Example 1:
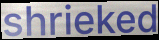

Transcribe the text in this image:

shrieked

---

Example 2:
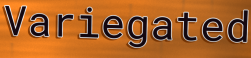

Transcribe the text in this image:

Variegated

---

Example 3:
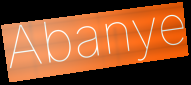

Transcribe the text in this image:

Abanye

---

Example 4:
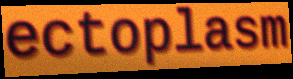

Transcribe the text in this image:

ectoplasm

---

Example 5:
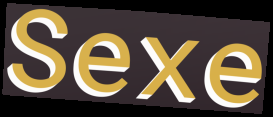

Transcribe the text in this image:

Sexe